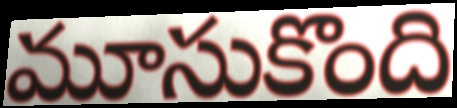
మూసుకొంది